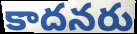
కాదనరు